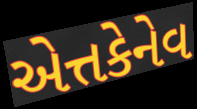
એત્તકેનેવ